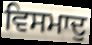
ਵਿਸਮਾਦੁ